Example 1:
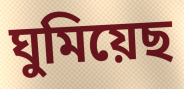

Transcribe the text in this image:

ঘুমিয়েছ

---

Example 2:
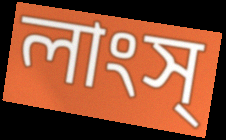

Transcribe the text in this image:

লাংস্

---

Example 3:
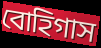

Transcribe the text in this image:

বোহিগাস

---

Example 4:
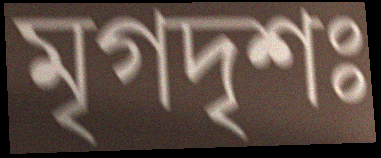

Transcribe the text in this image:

মৃগদৃশঃ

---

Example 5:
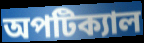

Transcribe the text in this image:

অপটিক্যাল